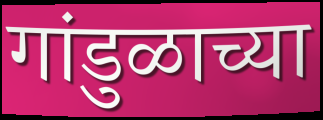
गांडुळाच्या